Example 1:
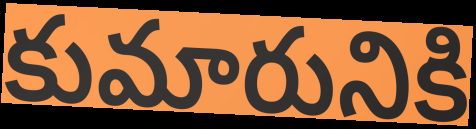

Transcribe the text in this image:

కుమారునికి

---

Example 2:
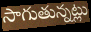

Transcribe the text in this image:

సాగుతున్నట్లు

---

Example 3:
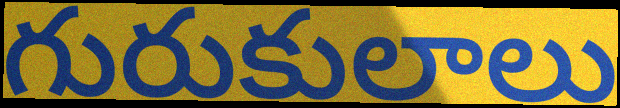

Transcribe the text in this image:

గురుకులాలు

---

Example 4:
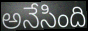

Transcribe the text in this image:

అనేసింది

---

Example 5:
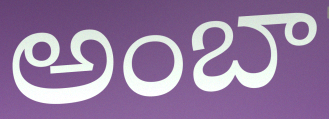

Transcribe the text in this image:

అంబా